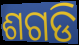
ଶଗଡି